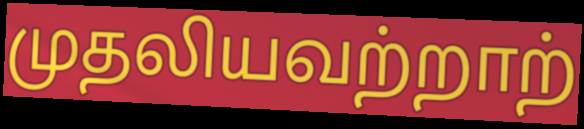
முதலியவற்றாற்